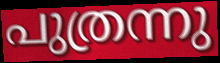
പുത്രന്നു